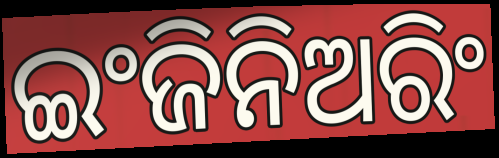
ଇଂଜିନିଅରିଂ